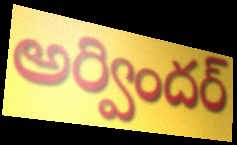
అర్విందర్